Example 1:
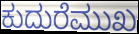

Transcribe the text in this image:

ಕುದುರೆಮುಖ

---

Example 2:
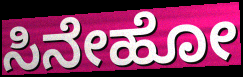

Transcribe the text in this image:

ಸಿನೇಹೋ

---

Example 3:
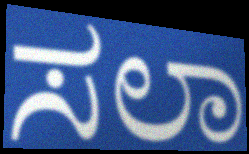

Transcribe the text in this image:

ಸಲಾ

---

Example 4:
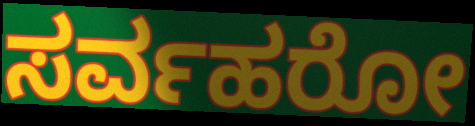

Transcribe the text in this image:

ಸರ್ವಹರೋ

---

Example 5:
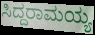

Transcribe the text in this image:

ಸಿದ್ದರಾಮಯ್ಯ